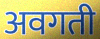
अवगती